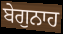
ਬੇਗੁਨਾਹ